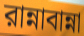
রান্নাবান্না